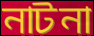
নাটনা